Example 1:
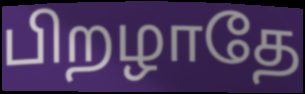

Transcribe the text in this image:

பிறழாதே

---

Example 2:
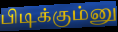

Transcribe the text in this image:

பிடிக்கும்னு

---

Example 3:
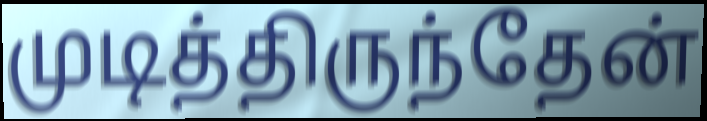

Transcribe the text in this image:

முடித்திருந்தேன்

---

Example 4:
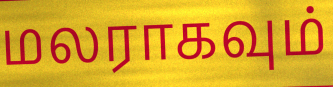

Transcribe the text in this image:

மலராகவும்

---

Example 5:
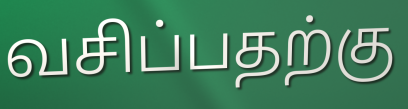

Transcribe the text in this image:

வசிப்பதற்கு